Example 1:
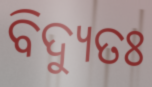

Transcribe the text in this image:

ବିଦ୍ୟୁତଃ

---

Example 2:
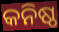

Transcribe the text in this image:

କନିଷ୍ଠ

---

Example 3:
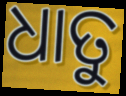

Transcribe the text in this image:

ଧାତୁ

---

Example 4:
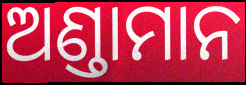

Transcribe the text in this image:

ଅଣ୍ଡାମାନ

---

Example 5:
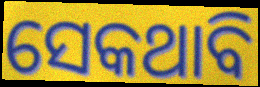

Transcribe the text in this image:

ସେକଥାବି